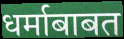
धर्माबाबत